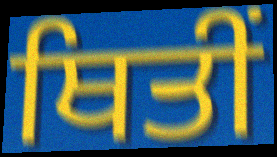
ਥਿਤੀਂ